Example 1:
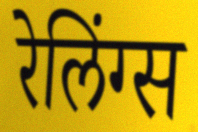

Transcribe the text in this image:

रेलिंग्स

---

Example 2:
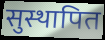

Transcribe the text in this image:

सुस्थापित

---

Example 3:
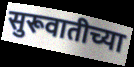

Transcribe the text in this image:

सुरूवातीच्या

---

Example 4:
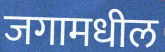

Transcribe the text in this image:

जगामधील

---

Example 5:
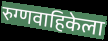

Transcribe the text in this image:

रुग्णवाहिकेला